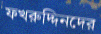
ফখরুদ্দিনদের